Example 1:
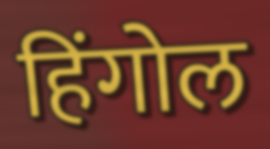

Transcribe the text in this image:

हिंगोल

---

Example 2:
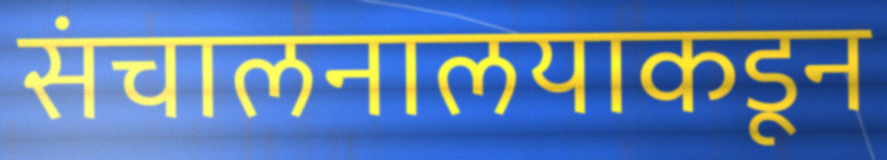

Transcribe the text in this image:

संचालनालयाकडून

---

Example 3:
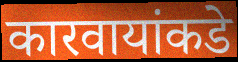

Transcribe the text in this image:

कारवायांकडे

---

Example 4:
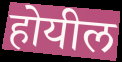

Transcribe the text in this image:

होयील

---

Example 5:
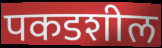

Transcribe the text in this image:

पकडशील